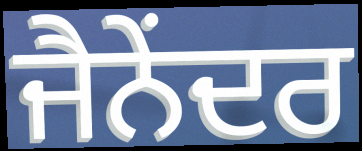
ਜੈਨੇਂਦਰ